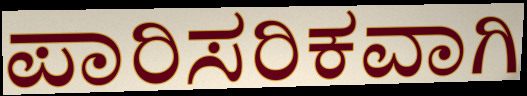
ಪಾರಿಸರಿಕವಾಗಿ